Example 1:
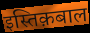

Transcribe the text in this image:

इस्तिक़बाल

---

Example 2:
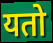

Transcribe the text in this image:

यतो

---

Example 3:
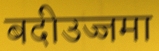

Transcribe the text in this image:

बदीउज्जमा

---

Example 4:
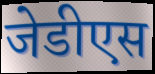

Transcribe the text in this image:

जेडीएस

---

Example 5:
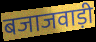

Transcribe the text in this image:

बजाजवाड़ी